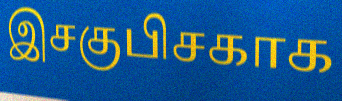
இசகுபிசகாக